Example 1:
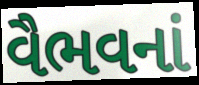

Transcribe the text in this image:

વૈભવનાં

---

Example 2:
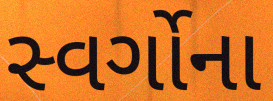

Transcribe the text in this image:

સ્વર્ગોના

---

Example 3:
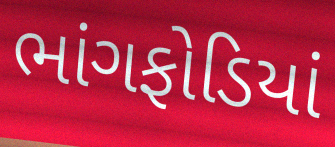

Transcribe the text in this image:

ભાંગફોડિયાં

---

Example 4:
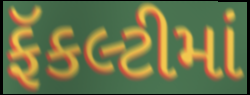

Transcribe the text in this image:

ફૅકલ્ટીમાં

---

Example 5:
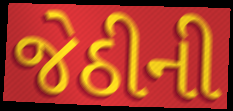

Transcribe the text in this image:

જેઠીની